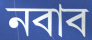
নবাব